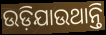
ଉଡ଼ିଯାଉଥାନ୍ତି